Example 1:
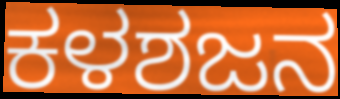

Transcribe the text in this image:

ಕಳಶಜನ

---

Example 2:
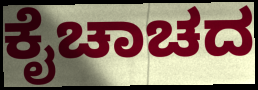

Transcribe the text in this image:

ಕೈಚಾಚದ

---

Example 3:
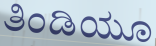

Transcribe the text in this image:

ತಿಂಡಿಯೂ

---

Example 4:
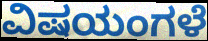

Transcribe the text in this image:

ವಿಷಯಂಗಳೆ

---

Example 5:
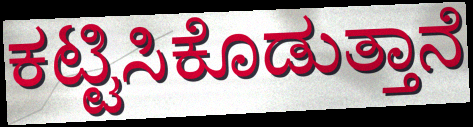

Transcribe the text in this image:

ಕಟ್ಟಿಸಿಕೊಡುತ್ತಾನೆ